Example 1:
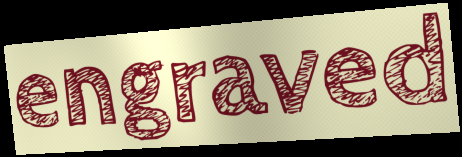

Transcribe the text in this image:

engraved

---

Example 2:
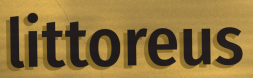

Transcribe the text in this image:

littoreus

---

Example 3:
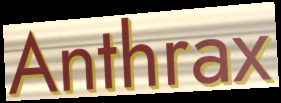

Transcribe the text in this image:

Anthrax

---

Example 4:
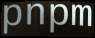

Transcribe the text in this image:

pnpm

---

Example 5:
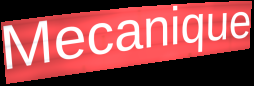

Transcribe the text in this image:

Mecanique